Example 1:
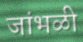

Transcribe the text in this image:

जांभळी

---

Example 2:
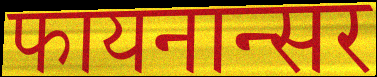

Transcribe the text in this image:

फायनान्सर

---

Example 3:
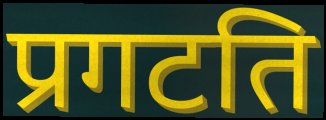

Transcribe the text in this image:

प्रगटति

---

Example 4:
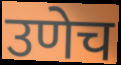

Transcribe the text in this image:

उणेच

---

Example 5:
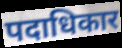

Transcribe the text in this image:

पदाधिकार